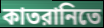
কাতরানিতে